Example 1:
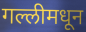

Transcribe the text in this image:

गल्लीमधून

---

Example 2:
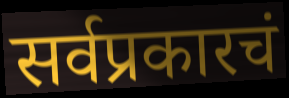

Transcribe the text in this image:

सर्वप्रकारचं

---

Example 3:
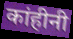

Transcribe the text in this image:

कांहीनी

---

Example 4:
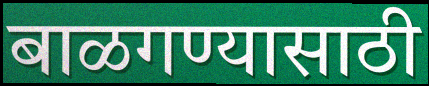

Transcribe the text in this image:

बाळगण्यासाठी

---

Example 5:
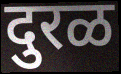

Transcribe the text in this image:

दुरळ